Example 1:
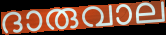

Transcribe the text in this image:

ദാരുവാല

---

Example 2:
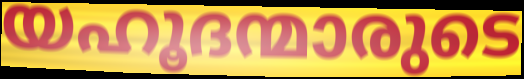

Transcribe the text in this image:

യഹൂദന്മാരുടെ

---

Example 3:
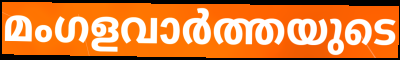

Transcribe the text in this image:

മംഗളവാർത്തയുടെ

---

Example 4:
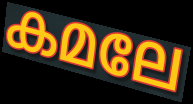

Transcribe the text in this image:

കമലേ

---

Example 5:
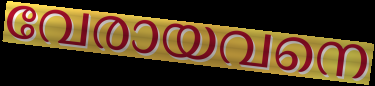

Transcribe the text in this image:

വേരായവനെ